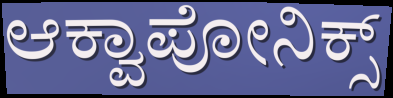
ಆಕ್ವಾಪೋನಿಕ್ಸ್